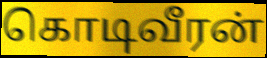
கொடிவீரன்